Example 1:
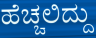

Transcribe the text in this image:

ಹೆಚ್ಚಲಿದ್ದು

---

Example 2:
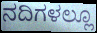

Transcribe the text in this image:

ನದಿಗಳಲ್ಲೂ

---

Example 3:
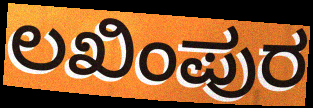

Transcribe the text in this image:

ಲಖಿಂಪುರ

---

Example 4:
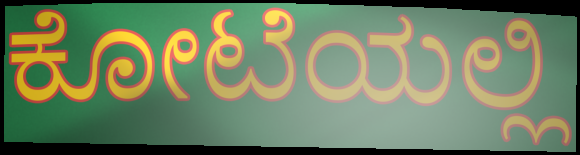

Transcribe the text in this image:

ಕೋಟೆಯಲ್ಲಿ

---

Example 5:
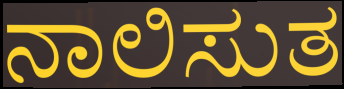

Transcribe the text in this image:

ನಾಲಿಸುತ